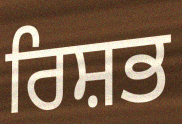
ਰਿਸ਼ਭ